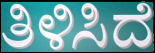
ತಿಳಿಸಿದೆ